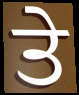
ਤੇ